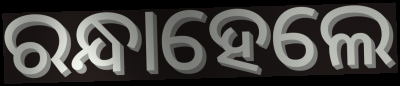
ରନ୍ଧାହେଲେ